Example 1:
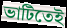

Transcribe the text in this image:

ভাটিতেই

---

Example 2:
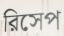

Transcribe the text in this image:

রিসেপ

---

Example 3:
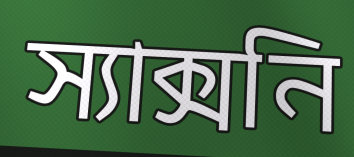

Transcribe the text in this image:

স্যাক্সনি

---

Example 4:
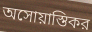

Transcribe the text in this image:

অসোয়াস্তিকর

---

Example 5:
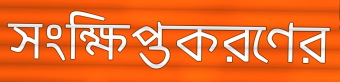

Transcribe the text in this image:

সংক্ষিপ্তকরণের